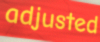
adjusted